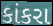
કાંકરા